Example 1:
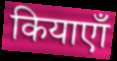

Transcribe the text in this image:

कियाएाँ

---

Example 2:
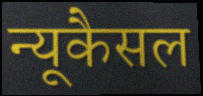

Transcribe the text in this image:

न्यूकैसल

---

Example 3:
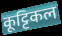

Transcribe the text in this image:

कूट्टिकल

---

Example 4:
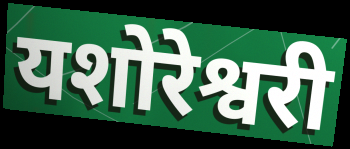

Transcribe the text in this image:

यशोरेश्वरी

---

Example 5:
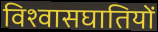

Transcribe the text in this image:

विश्वासघातियों